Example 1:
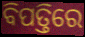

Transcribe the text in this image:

ବିପତ୍ତିରେ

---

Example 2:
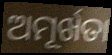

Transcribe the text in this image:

ଅମୂର୍ଖତା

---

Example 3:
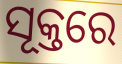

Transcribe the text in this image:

ସୂକ୍ତରେ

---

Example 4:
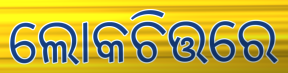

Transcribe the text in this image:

ଲୋକଚିତ୍ତରେ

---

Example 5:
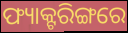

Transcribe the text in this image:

ଫ୍ୟାକ୍ଟରିଙ୍ଗରେ